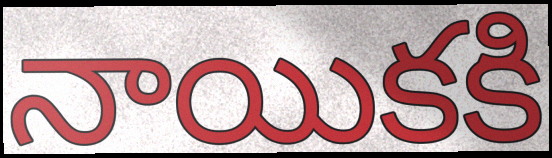
నాయికకి